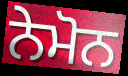
ਨੇਮੋਨ